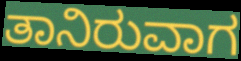
ತಾನಿರುವಾಗ